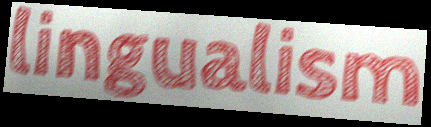
lingualism